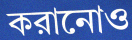
করানোও